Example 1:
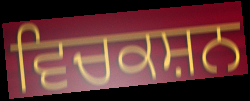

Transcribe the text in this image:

ਵਿਚਕਸ਼ਨ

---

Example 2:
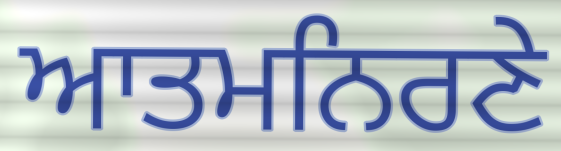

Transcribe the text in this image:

ਆਤਮਨਿਰਣੇ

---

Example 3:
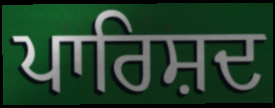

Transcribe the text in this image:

ਪਾਰਿਸ਼ਦ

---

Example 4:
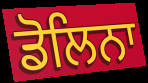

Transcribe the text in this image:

ਡੋਲਿਨਾ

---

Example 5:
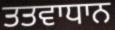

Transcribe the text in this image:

ਤਤਵਾਧਾਨ